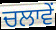
ਚਲਾਵੇਂ